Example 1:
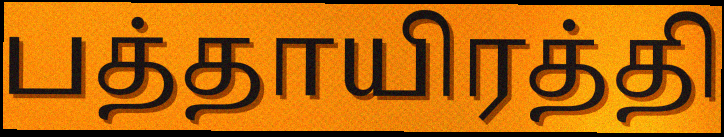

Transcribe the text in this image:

பத்தாயிரத்தி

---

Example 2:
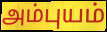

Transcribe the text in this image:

அம்புயம்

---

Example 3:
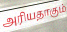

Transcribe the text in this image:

அரியதாகும்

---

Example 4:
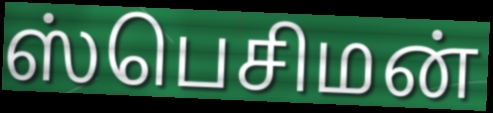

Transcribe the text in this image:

ஸ்பெசிமன்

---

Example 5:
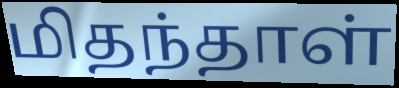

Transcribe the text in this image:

மிதந்தாள்